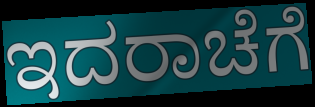
ಇದರಾಚೆಗೆ